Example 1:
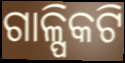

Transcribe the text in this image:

ଗାଳ୍ପିକଟି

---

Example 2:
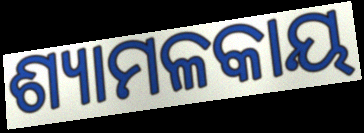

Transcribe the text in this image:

ଶ୍ୟାମଳକାୟ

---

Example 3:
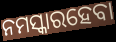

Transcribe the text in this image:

ନମସ୍କାରହେବା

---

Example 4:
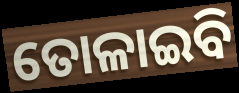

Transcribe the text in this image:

ତୋଳାଇବି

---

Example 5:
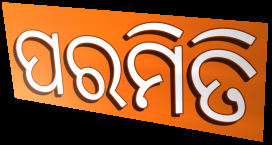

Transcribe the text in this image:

ପରମିତି